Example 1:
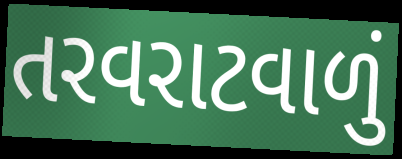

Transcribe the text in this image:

તરવરાટવાળું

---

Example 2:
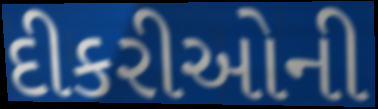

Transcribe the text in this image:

દીકરીઓની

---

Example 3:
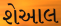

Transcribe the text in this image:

શેઆલ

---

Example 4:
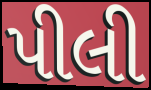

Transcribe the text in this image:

પીલી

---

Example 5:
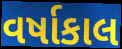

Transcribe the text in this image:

વર્ષાકાલ